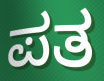
ಪತ